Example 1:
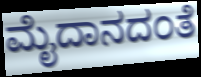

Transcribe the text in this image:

ಮೈದಾನದಂತೆ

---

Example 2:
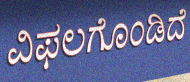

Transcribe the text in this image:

ವಿಫಲಗೊಂಡಿದೆ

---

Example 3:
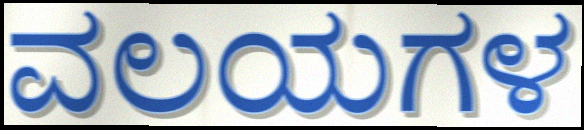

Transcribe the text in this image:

ವಲಯಗಳ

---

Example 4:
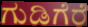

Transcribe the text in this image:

ಗುಡಿಗೆರೆ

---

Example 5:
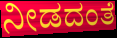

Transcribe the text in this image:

ನೀಡದಂತೆ